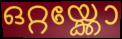
ഒറ്റയ്ക്കോ